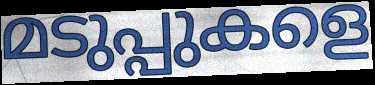
മടുപ്പുകളെ